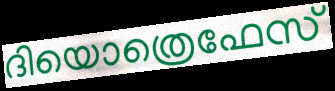
ദിയൊത്രെഫേസ്